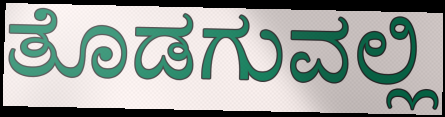
ತೊಡಗುವಲ್ಲಿ